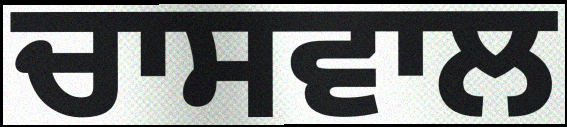
ਚਾਸਵਾਲ